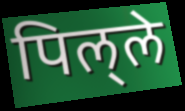
पिल्ले